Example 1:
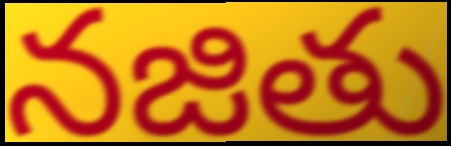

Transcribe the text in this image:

నజితు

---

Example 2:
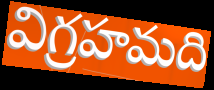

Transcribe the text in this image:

విగ్రహమది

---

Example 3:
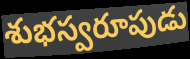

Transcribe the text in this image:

శుభస్వరూపుడు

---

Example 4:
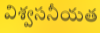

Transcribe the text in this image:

విశ్వసనీయత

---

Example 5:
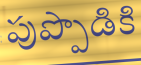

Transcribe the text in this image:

పుప్పొడికి